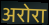
अरोरा